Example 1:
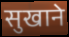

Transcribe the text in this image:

सुखाने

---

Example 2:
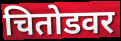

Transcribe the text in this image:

चितोडवर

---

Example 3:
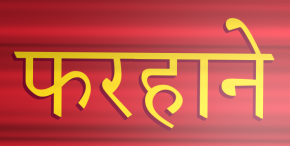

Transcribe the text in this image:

फरहाने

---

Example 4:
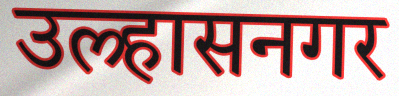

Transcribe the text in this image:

उल्हासनगर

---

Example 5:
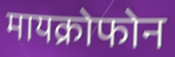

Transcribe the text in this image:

मायक्रोफोन